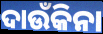
ଦାଉଁକିନା